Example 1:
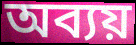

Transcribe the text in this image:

অব্যয়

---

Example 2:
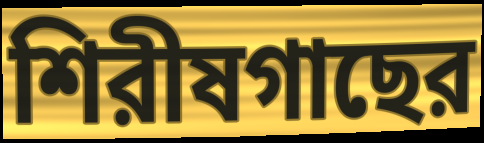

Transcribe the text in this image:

শিরীষগাছের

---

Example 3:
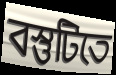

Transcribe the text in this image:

বস্তুটিতে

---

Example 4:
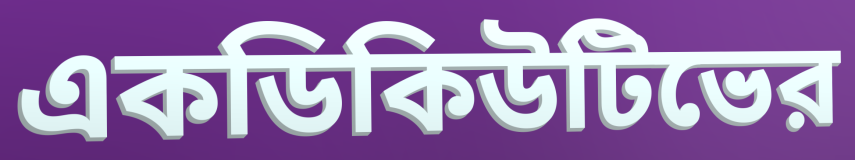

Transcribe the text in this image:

একডিকিউটিভের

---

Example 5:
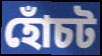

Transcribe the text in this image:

হোঁচট